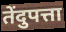
तेंदुपत्ता